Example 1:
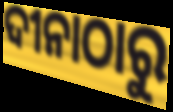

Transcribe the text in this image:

ଦୀନାଠାରୁ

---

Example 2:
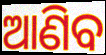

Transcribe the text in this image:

ଆଣିବ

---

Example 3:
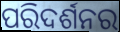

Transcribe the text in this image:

ପରିଦର୍ଶନର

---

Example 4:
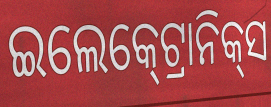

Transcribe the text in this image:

ଇଲେକ୍‍ଟ୍ରୋନିକ୍‍ସ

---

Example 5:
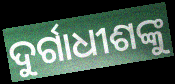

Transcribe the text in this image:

ଦୁର୍ଗାଧୀଶଙ୍କୁ